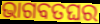
ଭାଗବତଘର